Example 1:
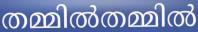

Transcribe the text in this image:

തമ്മിൽതമ്മിൽ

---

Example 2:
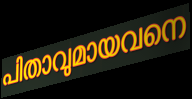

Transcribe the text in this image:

പിതാവുമായവനെ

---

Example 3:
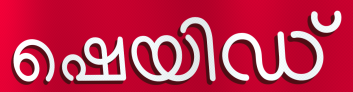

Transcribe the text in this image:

ഷെയിഡ്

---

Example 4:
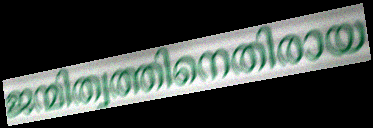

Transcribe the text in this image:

ജന്മിത്വത്തിനെതിരായ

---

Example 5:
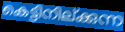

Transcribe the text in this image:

കെട്ടിനില്ക്കുന്ന